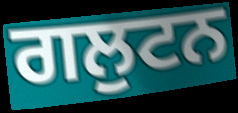
ਗਲੁਟਨ